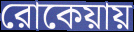
রোকেয়ায়